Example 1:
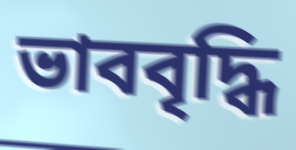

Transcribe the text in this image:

ভাববৃদ্ধি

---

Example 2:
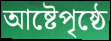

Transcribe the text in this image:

আষ্টেপৃষ্ঠে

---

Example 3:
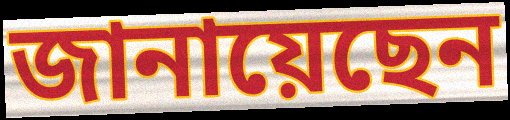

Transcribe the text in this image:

জানায়েছেন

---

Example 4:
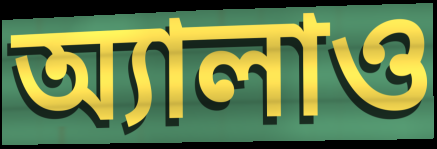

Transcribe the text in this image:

অ্যালাও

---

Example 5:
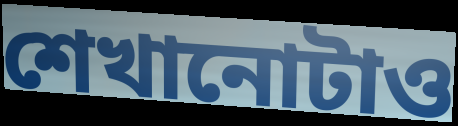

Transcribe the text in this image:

শেখানোটাও